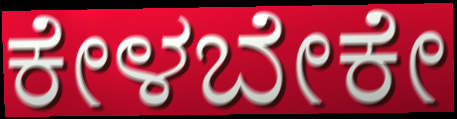
ಕೇಳಬೇಕೇ